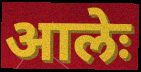
आलेः